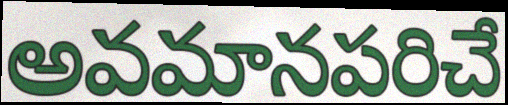
అవమానపరిచే